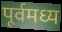
पूर्वमध्य